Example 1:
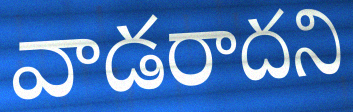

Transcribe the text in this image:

వాడరాదని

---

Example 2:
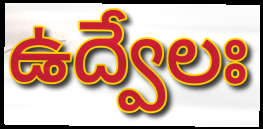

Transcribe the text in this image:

ఉద్వేలః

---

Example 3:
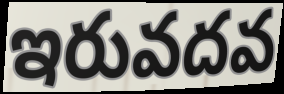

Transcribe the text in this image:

ఇరువదవ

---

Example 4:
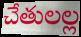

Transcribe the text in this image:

చేతులల్ల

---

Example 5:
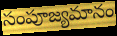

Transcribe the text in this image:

సంపూజ్యమానం